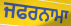
ਜਫਰਨਾਮਾ